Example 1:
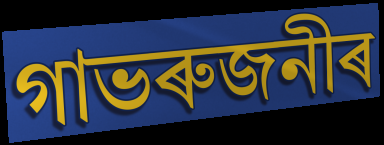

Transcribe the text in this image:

গাভৰুজনীৰ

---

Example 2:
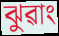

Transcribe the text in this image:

ঝুৱাং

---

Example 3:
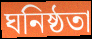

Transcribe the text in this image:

ঘনিষ্ঠতা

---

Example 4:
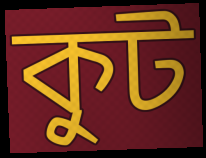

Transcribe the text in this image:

কুট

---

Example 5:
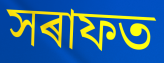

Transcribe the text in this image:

সৰাফত